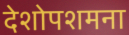
देशोपशमना